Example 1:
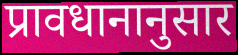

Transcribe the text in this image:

प्रावधानानुसार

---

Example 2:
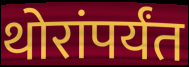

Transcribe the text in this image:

थोरांपर्यंत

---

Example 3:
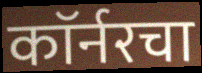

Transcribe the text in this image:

कॉर्नरचा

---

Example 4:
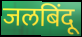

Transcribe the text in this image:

जलबिंदू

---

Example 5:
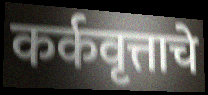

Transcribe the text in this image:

कर्कवृत्ताचे